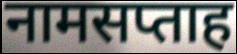
नामसप्ताह